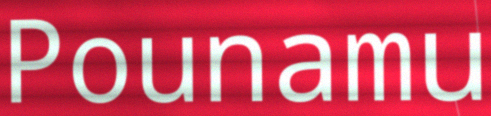
Pounamu